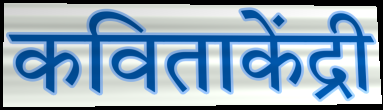
कविताकेंद्री